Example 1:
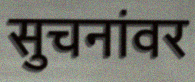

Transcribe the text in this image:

सुचनांवर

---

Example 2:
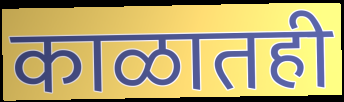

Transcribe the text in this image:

काळातही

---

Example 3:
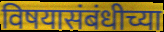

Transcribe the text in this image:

विषयासंबंधीच्या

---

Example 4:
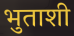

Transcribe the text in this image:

भुताशी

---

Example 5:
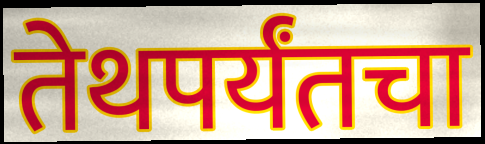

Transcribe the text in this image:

तेथपर्यंतचा